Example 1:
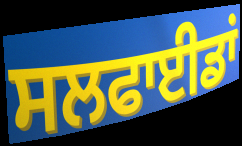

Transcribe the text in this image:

ਸਲਫਾਈਡਾਂ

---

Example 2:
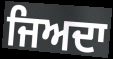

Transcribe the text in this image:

ਜਿਅਦਾ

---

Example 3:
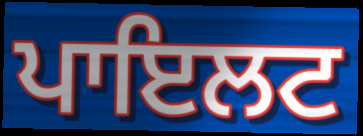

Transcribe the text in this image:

ਪਾਇਲਟ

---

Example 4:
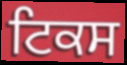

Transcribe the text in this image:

ਟਿਕਸ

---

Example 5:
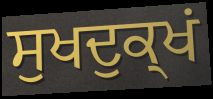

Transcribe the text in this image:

ਸੁਖਦੁਕ੍ਖਂ